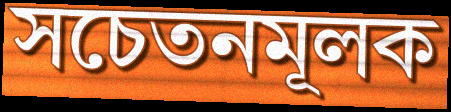
সচেতনমূলক